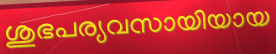
ശുഭപര്യവസായിയായ